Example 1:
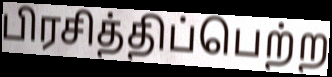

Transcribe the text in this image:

பிரசித்திப்பெற்ற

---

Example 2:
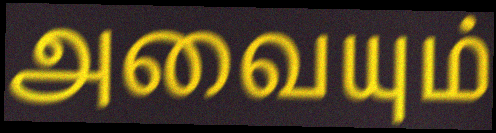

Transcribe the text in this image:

அவையும்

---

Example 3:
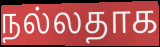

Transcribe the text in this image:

நல்லதாக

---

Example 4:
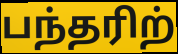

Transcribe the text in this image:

பந்தரிற்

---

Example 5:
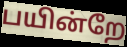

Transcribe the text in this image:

பயின்றே